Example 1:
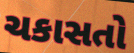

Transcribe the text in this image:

ચકાસતો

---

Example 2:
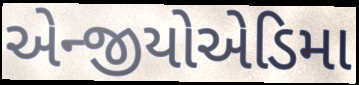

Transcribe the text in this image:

એન્જીયોએડિમા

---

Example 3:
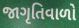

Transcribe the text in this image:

જાગૃતિવાળો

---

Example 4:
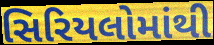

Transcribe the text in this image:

સિરિયલોમાંથી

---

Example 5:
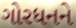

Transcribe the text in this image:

ગોરધનને